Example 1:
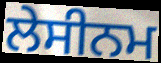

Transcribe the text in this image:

ਲੇਸੀਨਮ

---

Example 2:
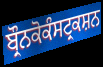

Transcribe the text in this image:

ਬ੍ਰੌਨਕੋਕੰਸਟ੍ਰਕਸ਼ਨ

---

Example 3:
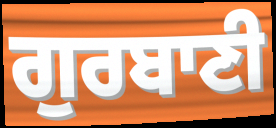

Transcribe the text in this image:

ਗੁਰਬਾਣੀ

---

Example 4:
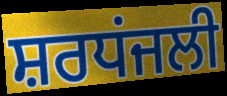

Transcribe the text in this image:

ਸ਼ਰਧਂਜਲੀ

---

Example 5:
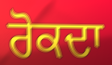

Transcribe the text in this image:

ਰੋਕਦਾ